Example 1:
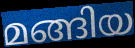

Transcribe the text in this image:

മങ്ങിയ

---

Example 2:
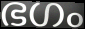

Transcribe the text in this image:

ഭഗം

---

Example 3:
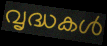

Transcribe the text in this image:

വൃദ്ധകൾ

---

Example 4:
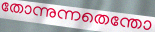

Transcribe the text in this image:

തോന്നുന്നതെന്തോ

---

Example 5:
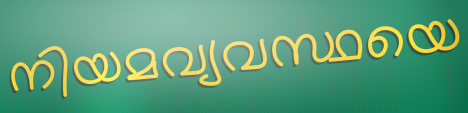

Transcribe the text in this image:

നിയമവ്യവസ്ഥയെ